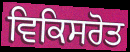
ਵਿਕਿਸਰੋਤ